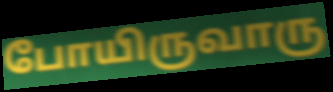
போயிருவாரு